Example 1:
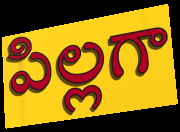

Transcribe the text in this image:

పిల్లగా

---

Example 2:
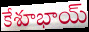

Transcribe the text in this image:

కేశూభాయ్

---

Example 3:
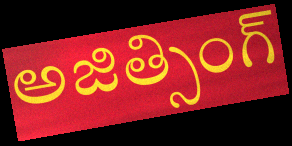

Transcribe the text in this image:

అజిత్సింగ్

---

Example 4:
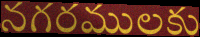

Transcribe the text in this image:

నగరములకు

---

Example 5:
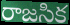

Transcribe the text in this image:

రాజసిక